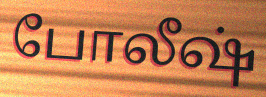
போலீஷ்